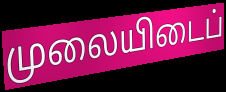
முலையிடைப்